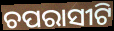
ଚପରାସୀଟି